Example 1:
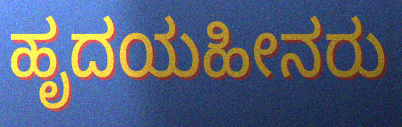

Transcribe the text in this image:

ಹೃದಯಹೀನರು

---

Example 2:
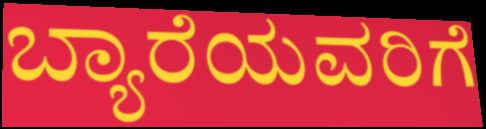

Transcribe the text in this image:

ಬ್ಯಾರೆಯವರಿಗೆ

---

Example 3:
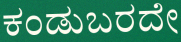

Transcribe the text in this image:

ಕಂಡುಬರದೇ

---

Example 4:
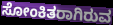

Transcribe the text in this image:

ಸೋಂಕಿತರಾಗಿರುವ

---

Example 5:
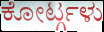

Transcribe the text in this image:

ಕೋರ್ಟ್ಗಳು